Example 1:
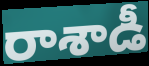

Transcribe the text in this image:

రాశాడీ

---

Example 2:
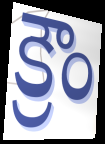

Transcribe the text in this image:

క్రౌం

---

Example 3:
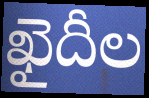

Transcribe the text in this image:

ఖైదీల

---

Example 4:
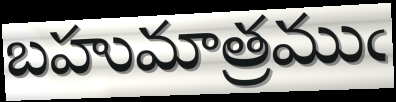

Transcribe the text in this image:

బహుమాత్రముఁ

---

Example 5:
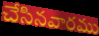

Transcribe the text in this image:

చేసినవారము